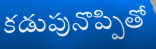
కడుపునొప్పితో